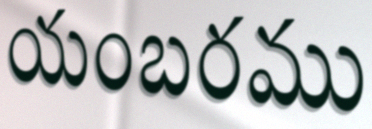
యంబరము